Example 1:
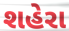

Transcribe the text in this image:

શહેરા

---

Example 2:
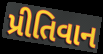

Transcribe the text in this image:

પ્રીતિવાન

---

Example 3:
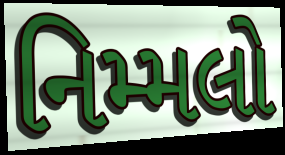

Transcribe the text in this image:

નિમ્મલો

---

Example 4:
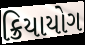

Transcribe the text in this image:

ક્રિયાયોગ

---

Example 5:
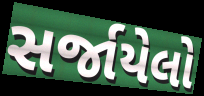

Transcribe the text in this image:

સર્જાયેલો